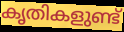
കൃതികളുണ്ട്